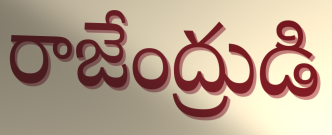
రాజేంద్రుడి